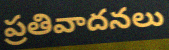
ప్రతివాదనలు